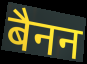
बैनन